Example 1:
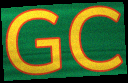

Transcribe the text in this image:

GC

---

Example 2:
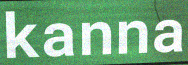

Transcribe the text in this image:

kanna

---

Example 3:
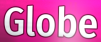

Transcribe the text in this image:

Globe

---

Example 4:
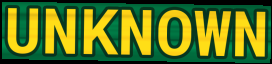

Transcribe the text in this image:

UNKNOWN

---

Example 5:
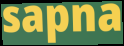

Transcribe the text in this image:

sapna